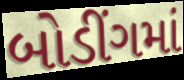
બોડીંગમાં